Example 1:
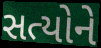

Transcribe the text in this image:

સત્યોને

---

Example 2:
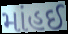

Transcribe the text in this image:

માંહઈ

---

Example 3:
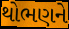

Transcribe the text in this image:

થોભણને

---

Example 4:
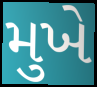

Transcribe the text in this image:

મુખે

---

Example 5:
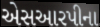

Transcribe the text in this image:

એસઆરપીના